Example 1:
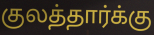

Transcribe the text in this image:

குலத்தார்க்கு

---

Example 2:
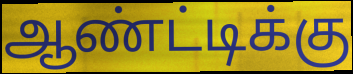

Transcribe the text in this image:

ஆண்ட்டிக்கு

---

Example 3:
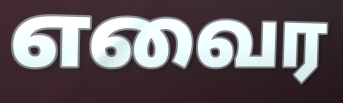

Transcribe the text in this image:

எவைர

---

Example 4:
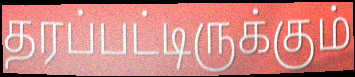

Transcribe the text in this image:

தரப்பட்டிருக்கும்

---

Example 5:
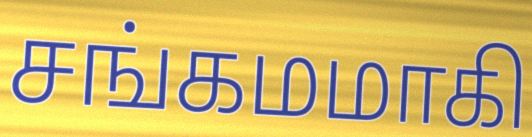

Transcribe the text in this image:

சங்கமமாகி